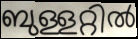
ബുള്ളറ്റിൽ